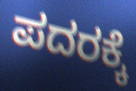
ಪದರಕ್ಕೆ